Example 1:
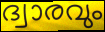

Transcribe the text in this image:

ദ്വാരവും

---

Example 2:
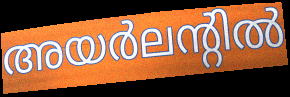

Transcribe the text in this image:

അയർലന്റിൽ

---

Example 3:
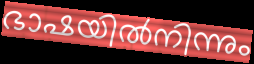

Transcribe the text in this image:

ഭാഷയിൽനിന്നും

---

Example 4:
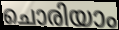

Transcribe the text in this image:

ചൊരിയാം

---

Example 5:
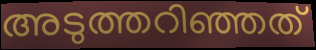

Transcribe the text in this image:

അടുത്തറിഞ്ഞത്